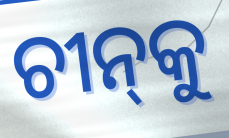
ଚୀନ୍‌କୁ